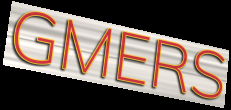
GMERS